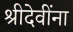
श्रीदेवींना